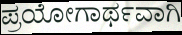
ಪ್ರಯೋಗಾರ್ಥವಾಗಿ